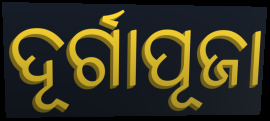
ଦୂର୍ଗାପୂଜା